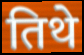
तिथे